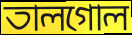
তালগোল